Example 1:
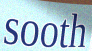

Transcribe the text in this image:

sooth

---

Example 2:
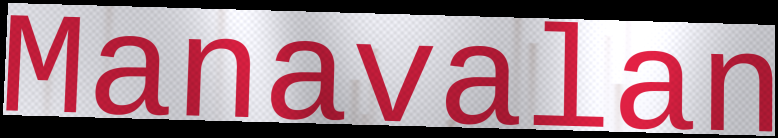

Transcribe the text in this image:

Manavalan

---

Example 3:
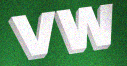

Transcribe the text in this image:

VW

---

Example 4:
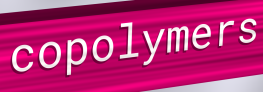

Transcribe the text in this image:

copolymers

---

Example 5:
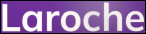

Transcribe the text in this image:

Laroche